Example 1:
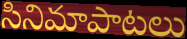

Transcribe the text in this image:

సినిమాపాటలు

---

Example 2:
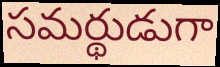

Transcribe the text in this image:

సమర్థుడుగా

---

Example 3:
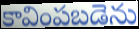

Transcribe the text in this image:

కావింపబడెను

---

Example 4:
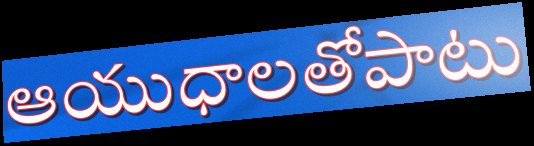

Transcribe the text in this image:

ఆయుధాలతోపాటు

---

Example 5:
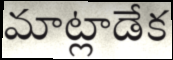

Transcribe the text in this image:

మాట్లాడేక